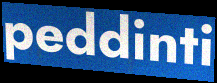
peddinti